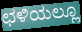
ಛಳಿಯಲ್ಲೂ